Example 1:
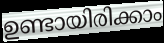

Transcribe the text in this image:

ഉണ്ടായിരിക്കാം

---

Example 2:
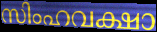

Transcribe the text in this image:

സിംഹവക്ഷാ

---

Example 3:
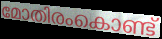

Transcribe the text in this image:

മോതിരംകൊണ്ട്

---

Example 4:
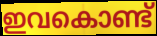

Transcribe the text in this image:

ഇവകൊണ്ട്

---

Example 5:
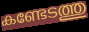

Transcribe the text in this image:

കണ്ടേടത്തു